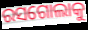
ରସଗୋଲାକୁ